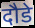
दौडे